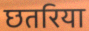
छतरिया